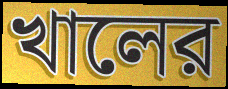
খালের